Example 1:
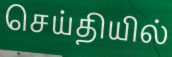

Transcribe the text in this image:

செய்தியில்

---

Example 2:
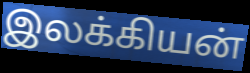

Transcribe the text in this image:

இலக்கியன்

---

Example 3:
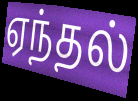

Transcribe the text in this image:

ஏந்தல்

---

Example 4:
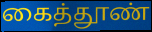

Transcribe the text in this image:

கைத்தூண்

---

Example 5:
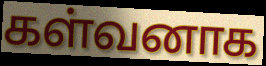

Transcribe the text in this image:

கள்வனாக